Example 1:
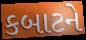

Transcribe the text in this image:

કબાટને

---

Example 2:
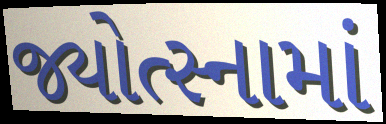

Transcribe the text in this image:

જ્યોત્સ્નામાં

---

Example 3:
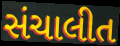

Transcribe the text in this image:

સંચાલીત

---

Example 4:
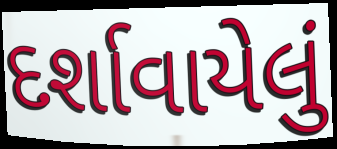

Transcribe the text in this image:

દર્શાવાયેલું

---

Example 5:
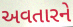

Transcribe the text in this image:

અવતારને